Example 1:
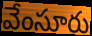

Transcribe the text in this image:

వేంసూరు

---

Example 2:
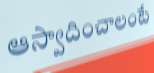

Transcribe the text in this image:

ఆస్వాదించాలంటే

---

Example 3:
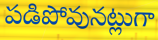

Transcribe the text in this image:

పడిపోవునట్లుగా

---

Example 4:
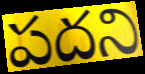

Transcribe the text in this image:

పదని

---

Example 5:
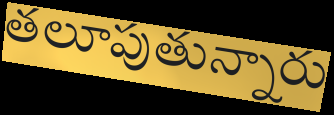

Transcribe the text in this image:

తలూపుతున్నారు